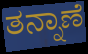
ತನ್ನಾಣೆ